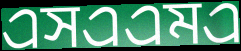
এসএএমএ